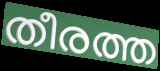
തീരത്ത